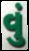
વું